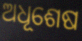
ଅଧୂଶେଷ